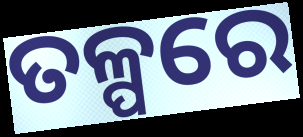
ତଳ୍ପରେ